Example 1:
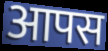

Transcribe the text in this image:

आपस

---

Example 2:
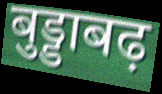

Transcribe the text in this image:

बुड्डाबढ़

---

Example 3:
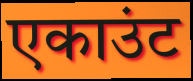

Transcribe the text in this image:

एकाउंट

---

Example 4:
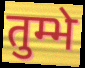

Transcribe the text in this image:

तुम्भे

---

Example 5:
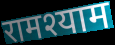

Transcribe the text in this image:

रामश्याम